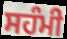
ਸਹੰਮੀ